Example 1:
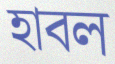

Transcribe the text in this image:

হাবল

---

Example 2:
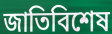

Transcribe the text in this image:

জাতিবিশেষ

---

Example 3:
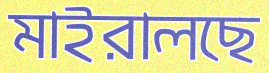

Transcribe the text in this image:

মাইরালছে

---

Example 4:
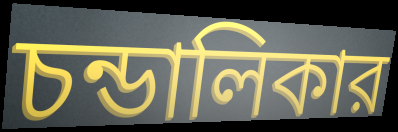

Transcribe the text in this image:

চন্ডালিকার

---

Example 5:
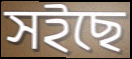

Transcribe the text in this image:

সইছে